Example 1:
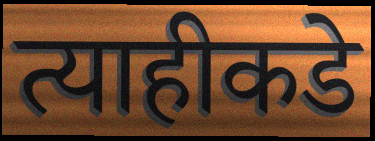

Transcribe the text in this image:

त्याहीकडे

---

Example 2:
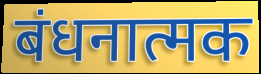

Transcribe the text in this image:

बंधनात्मक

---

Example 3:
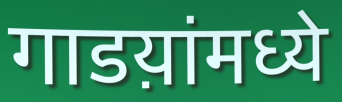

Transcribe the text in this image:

गाडय़ांमध्ये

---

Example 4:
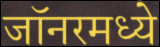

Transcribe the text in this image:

जॉनरमध्ये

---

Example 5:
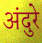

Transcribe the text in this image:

अंदुरे